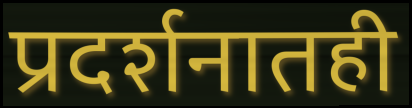
प्रदर्शनातही